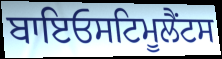
ਬਾਇਓਸਟਿਮੂਲੈਂਟਸ